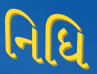
નિધિ